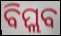
ବିପ୍ଲବ